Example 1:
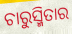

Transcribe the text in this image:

ଚାରୁସ୍ମିତାର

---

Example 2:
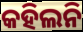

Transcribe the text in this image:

କହିଲନି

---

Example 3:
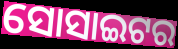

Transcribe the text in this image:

ସୋସାଇଟର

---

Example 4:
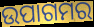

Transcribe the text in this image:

ଉପାଗମର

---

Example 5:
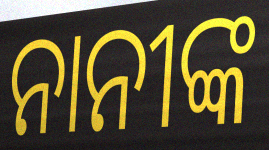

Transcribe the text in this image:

ନାନୀଙ୍କ